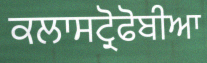
ਕਲਾਸਟ੍ਰੋਫੋਬੀਆ